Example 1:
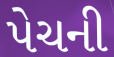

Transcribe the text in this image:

પેચની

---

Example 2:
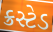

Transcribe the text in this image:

ક્રસ્ટેડ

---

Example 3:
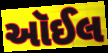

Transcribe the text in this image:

આૅઈલ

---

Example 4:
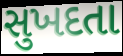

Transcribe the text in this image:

સુખદતા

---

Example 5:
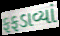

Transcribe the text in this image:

ફફડાવ્યાં